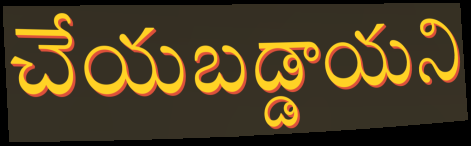
చేయబడ్డాయని